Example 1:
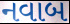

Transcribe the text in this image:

નવાબ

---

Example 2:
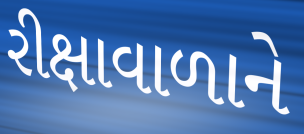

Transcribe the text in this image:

રીક્ષાવાળાને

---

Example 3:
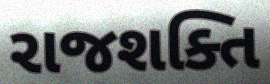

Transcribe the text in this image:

રાજશક્તિ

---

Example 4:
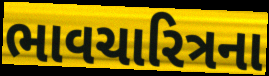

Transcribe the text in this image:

ભાવચારિત્રના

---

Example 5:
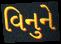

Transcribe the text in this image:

વિનુને